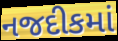
નજદીકમાં